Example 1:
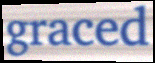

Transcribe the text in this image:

graced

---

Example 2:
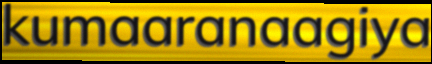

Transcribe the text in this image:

kumaaranaagiya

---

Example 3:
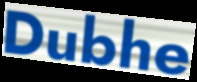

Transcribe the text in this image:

Dubhe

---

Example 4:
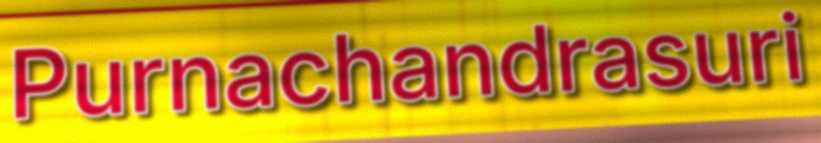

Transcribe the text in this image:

Purnachandrasuri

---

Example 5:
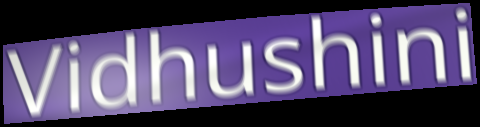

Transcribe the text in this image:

Vidhushini